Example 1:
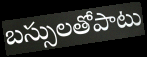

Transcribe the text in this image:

బస్సులతోపాటు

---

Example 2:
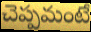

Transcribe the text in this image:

చెప్పమంటే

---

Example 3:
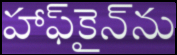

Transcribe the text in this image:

హాఫ్‌కైన్‌ను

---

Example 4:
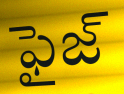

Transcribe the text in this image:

ఫైజ్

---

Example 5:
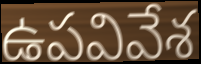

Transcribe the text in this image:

ఉపవివేశ